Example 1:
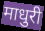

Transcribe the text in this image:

माधुरी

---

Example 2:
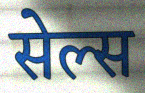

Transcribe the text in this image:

सेल्स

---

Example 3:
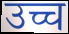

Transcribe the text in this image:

उच्‍च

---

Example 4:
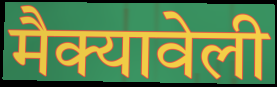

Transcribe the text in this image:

मैक्यावेली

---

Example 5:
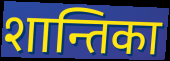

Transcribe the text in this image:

शान्तिका